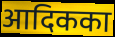
आदिकका